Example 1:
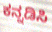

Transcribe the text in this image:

ಕನ್ನಡಿಸಿ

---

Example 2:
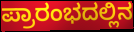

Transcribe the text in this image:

ಪ್ರಾರಂಭದಲ್ಲಿನ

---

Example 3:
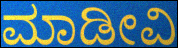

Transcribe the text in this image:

ಮಾಡೀವಿ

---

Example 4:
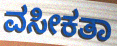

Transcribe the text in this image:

ವಸೀಕತಾ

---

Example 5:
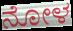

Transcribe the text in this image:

ನೋಳ